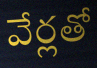
వేర్లతో